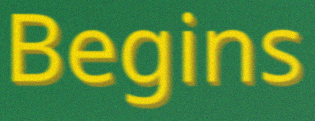
Begins